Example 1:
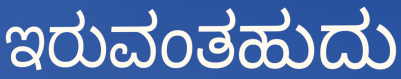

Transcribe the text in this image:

ಇರುವಂತಹುದು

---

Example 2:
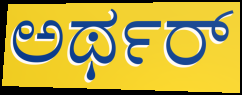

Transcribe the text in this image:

ಅರ್ಥರ್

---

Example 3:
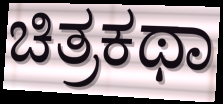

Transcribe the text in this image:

ಚಿತ್ರಕಥಾ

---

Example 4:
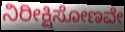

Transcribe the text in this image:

ನಿರೀಕ್ಷಿಸೋಣವೇ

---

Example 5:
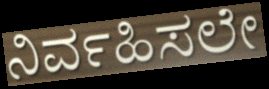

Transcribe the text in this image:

ನಿರ್ವಹಿಸಲೇ